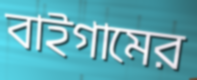
বাইগামের